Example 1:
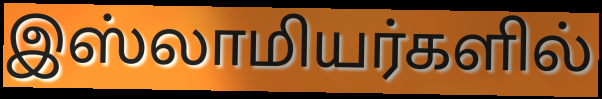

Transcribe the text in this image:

இஸ்லாமியர்களில்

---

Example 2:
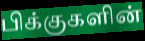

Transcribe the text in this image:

பிக்குகளின்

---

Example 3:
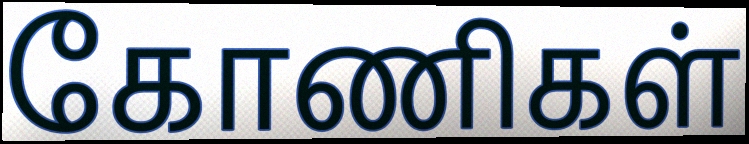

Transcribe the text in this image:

கோணிகள்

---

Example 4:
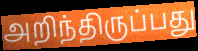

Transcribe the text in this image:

அறிந்திருப்பது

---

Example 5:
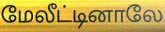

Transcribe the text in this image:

மேலீட்டினாலே